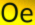
Oe